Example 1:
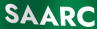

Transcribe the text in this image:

SAARC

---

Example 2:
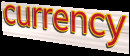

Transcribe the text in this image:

currency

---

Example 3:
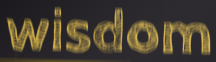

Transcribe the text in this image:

wisdom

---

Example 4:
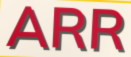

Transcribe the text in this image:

ARR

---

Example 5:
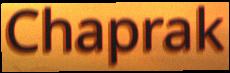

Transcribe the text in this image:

Chaprak